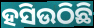
ହସିଉଠିଛି